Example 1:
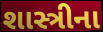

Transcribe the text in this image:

શાસ્ત્રીના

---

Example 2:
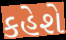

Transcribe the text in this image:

કહેશે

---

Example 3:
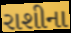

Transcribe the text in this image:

રાશીના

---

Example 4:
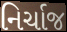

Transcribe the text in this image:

નિર્ચાજ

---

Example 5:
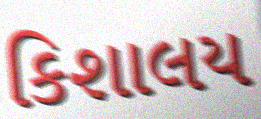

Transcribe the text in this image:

કિશાલય